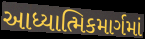
આધ્યાત્મિકમાર્ગમાં